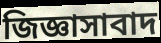
জিজ্ঞাসাবাদ